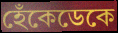
হেঁকেডেকে